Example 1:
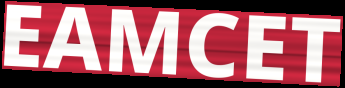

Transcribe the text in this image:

EAMCET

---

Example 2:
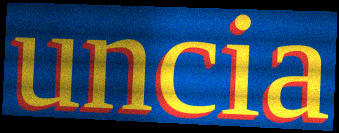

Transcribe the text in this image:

uncia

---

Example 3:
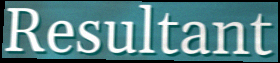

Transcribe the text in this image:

Resultant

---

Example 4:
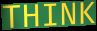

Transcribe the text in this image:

THINK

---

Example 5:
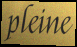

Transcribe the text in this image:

pleine